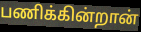
பணிக்கின்றான்